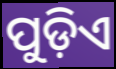
ପୁଡ଼ିଏ